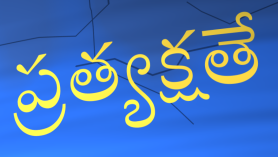
ప్రత్యక్షతే